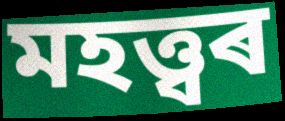
মহত্ত্বৰ